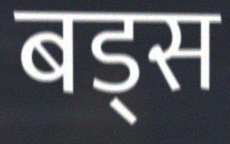
बड्स